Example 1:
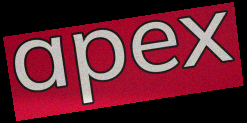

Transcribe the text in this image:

apex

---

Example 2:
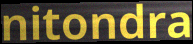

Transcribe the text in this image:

nitondra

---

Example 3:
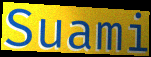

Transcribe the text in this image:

Suami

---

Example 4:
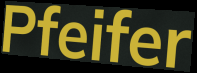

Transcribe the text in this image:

Pfeifer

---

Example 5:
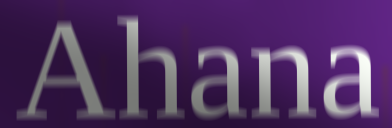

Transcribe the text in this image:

Ahana